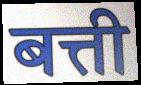
बत्ती